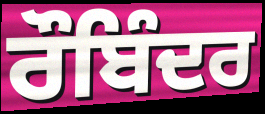
ਰੌਬਿੰਦਰ